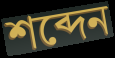
শব্দেন